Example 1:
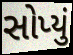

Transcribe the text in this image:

સોપ્યું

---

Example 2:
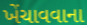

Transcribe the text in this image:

ખેંચાવવાના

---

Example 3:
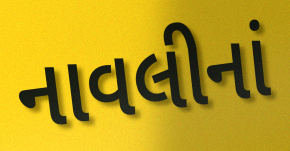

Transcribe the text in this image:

નાવલીનાં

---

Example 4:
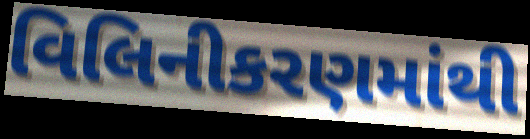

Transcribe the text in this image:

વિલિનીકરણમાંથી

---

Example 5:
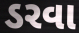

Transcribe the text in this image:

ડરવા